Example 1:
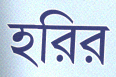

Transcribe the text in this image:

হরির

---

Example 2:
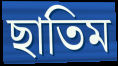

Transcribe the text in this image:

ছাতিম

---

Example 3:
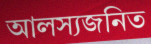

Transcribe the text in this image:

আলস্যজনিত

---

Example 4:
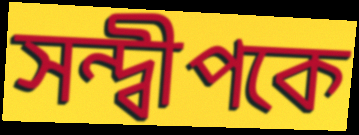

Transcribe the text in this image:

সন্দ্বীপকে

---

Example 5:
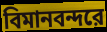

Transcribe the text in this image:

বিমানবন্দরে